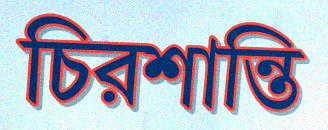
চিরশান্তি